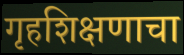
गृहशिक्षणाचा